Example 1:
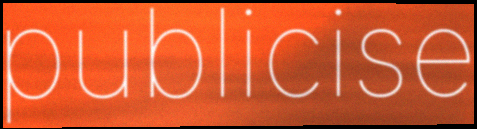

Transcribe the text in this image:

publicise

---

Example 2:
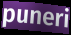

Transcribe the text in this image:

puneri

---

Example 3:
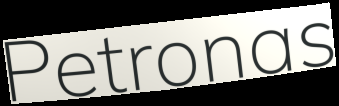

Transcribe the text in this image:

Petronas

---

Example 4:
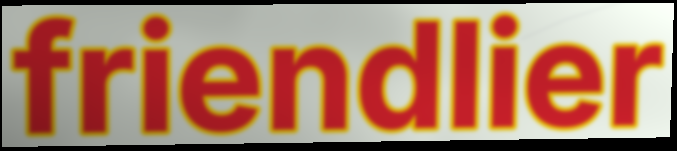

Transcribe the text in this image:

friendlier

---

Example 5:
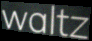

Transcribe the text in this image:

waltz